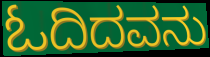
ಓದಿದವನು